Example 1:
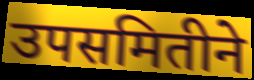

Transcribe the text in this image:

उपसमितीने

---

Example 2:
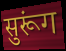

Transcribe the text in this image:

सुरूंग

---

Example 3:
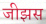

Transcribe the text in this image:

जीझस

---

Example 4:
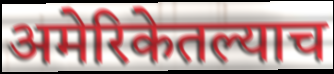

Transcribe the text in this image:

अमेरिकेतल्याच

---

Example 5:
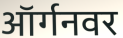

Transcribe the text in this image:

ऑर्गनवर